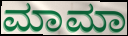
ಮಾಮಾ